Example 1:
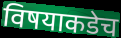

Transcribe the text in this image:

विषयाकडेच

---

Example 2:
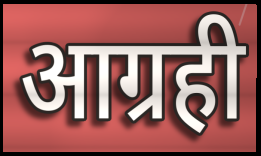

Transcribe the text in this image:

आग्रही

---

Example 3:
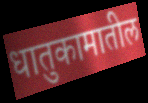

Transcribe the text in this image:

धातुकामातील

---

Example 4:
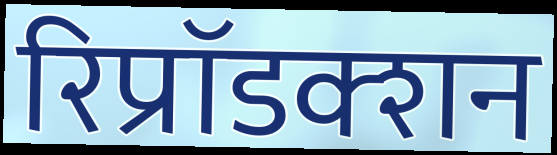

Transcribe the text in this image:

रिप्रॉडक्शन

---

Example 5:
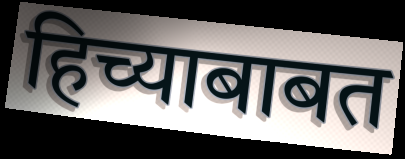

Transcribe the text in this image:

हिच्याबाबत